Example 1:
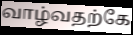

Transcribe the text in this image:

வாழ்வதற்கே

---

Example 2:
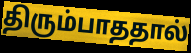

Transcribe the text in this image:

திரும்பாததால்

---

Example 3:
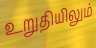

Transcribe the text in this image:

உறுதியிலும்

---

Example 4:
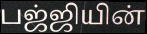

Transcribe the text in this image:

பஜ்ஜியின்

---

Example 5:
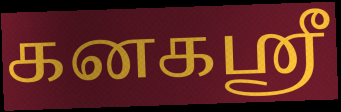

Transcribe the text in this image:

கனகஸ்ரீ